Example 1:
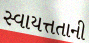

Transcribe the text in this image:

સ્વાયત્તતાની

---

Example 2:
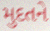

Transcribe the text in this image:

મુદતને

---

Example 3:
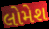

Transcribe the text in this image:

લોમેશ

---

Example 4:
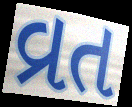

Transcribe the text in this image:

વ્રત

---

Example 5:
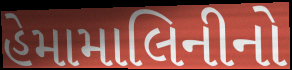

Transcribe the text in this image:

હેમામાલિનીનો